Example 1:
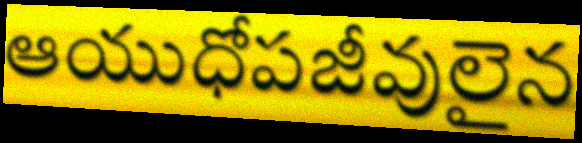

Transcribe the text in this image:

ఆయుధోపజీవులైన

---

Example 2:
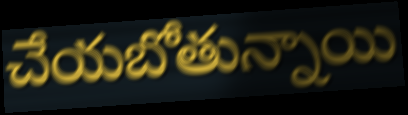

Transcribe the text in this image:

చేయబోతున్నాయి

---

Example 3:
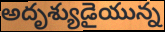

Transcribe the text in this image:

అదృశ్యుడైయున్న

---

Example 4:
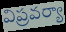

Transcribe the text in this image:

విప్రవర్యా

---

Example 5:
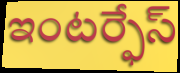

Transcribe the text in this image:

ఇంటర్ఫేస్